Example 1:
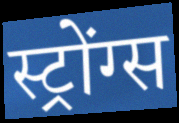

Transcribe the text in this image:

स्ट्रोंग्स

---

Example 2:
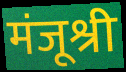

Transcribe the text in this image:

मंजूश्री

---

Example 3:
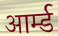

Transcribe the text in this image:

आर्म्ड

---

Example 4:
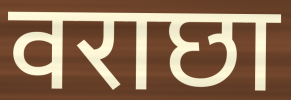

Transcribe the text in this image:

वराछा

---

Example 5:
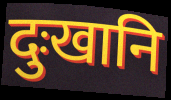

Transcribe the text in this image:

दुःखानि